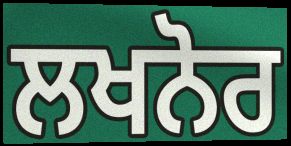
ਲਖਨੋਰ